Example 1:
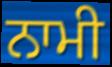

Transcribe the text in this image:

ਨਾਮੀ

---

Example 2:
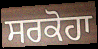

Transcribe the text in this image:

ਸਰਕੋਹਾ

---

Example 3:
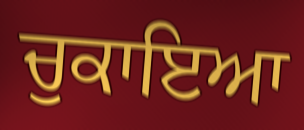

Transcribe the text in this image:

ਚੁਕਾਇਆ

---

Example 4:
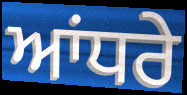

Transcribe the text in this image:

ਆਂਧਰੇ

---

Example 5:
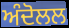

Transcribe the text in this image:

ਅੰਦੋਲਲ